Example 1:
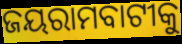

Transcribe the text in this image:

ଜୟରାମବାଟୀକୁ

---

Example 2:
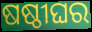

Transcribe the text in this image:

ଷଷ୍ଠୀଘର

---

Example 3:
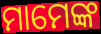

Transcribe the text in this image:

ମାମେଙ୍କ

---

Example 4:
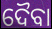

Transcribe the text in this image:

ଦୈବା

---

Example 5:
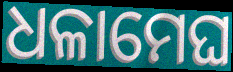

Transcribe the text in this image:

ଧଳାମେଘ